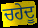
ਚਹੇਦੂ